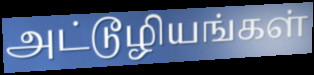
அட்டூழியங்கள்